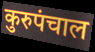
कुरुपंचाल